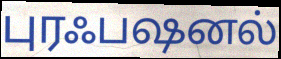
புரஃபஷனல்